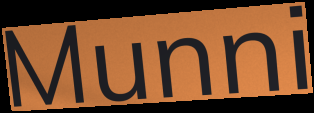
Munni